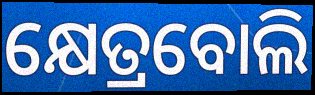
କ୍ଷେତ୍ରବୋଲି